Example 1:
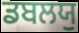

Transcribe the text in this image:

ਡਬਲਯੁ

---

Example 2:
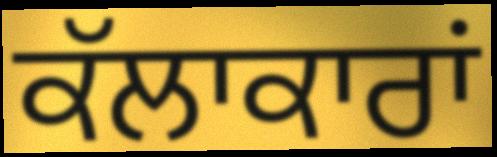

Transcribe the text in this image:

ਕੱਲਾਕਾਰਾਂ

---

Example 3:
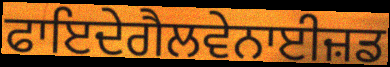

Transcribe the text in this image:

ਫਾਇਦੇਗੈਲਵੇਨਾਈਜ਼ਡ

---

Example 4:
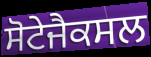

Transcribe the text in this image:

ਸੋਟੇਜੈਕਸਲ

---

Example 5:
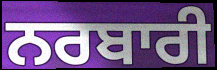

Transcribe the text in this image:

ਨਰਬਾਰੀ